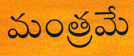
మంత్రమే